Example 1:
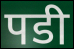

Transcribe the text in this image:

पडी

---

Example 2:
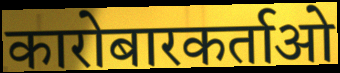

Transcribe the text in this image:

कारोबारकर्ताओ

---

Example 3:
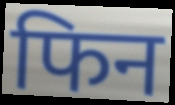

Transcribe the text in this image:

फिन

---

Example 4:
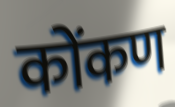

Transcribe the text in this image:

कोंकण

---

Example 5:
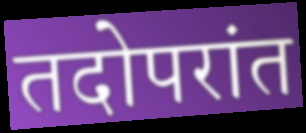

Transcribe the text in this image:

तदोपरांत